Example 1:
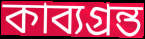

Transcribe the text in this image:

কাব্যগ্রন্ত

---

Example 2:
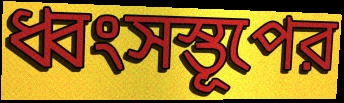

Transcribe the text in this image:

ধ্বংসস্তূপের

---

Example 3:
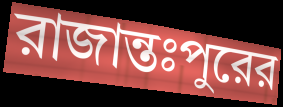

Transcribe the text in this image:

রাজান্তঃপুরের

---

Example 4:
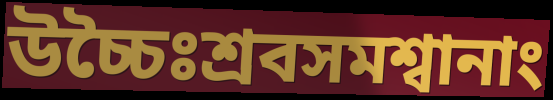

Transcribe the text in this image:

উচ্চৈঃশ্রবসমশ্বানাং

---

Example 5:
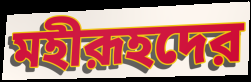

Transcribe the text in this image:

মহীরূহদের